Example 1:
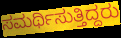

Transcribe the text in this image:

ಸಮರ್ಥಿಸುತ್ತಿದ್ದರು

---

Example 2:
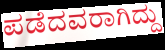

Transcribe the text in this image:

ಪಡೆದವರಾಗಿದ್ದು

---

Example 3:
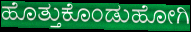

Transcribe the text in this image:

ಹೊತ್ತುಕೊಂಡುಹೋಗಿ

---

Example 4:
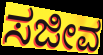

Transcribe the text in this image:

ಸಜೀವ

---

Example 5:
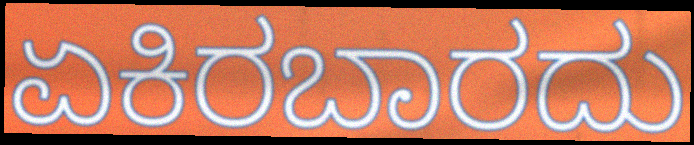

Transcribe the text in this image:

ಏಕಿರಬಾರದು